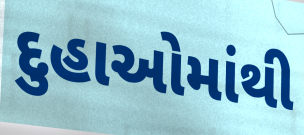
દુહાઓમાંથી